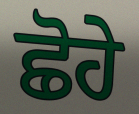
ਛੋਹੇ